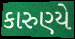
કારુણ્યે